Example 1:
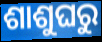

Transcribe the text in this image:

ଶାଶୁଘରୁ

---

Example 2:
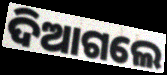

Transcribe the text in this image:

ଦିଆଗଲେ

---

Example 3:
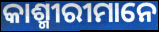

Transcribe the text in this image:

କାଶ୍ମୀରୀମାନେ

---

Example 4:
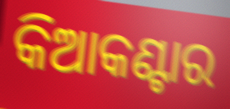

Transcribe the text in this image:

କିଆକଣ୍ଟାର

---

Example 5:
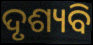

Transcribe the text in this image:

ଦୃଶ୍ୟବି